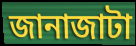
জানাজাটা